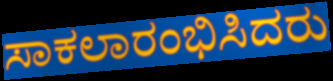
ಸಾಕಲಾರಂಭಿಸಿದರು